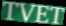
TVET